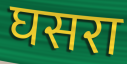
घसरा